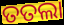
ତତଲା